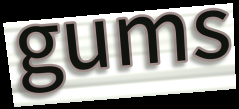
gums